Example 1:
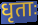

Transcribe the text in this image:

धृताः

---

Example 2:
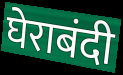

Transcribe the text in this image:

घेराबंदी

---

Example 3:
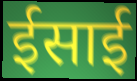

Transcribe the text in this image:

ईसाई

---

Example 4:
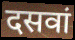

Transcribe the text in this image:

दसवां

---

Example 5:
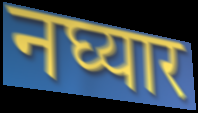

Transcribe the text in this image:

नघ्यार